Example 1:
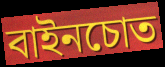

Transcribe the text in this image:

বাইনচোত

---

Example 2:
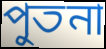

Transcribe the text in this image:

পুতনা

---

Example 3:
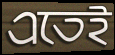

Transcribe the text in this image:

এতেই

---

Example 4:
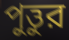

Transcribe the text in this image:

পুত্তুর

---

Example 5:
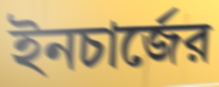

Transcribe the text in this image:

ইনচার্জের